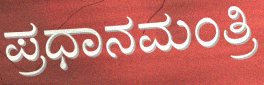
ಪ್ರಧಾನಮಂತ್ರಿ